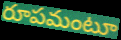
రూపమంటూ